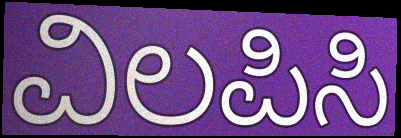
ವಿಲಪಿಸಿ